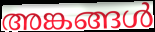
അങ്കങ്ങൾ